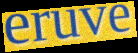
eruve